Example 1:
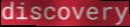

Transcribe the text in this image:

discovery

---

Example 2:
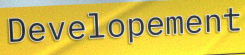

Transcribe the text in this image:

Developement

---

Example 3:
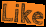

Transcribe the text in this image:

Like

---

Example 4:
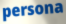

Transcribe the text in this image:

persona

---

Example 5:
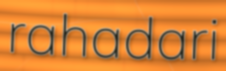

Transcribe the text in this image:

rahadari